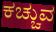
ಕಚ್ಚುವ